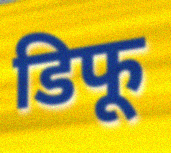
डिफू